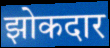
झोकदार